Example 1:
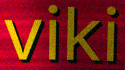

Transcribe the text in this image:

viki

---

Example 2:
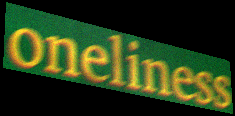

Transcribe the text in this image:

oneliness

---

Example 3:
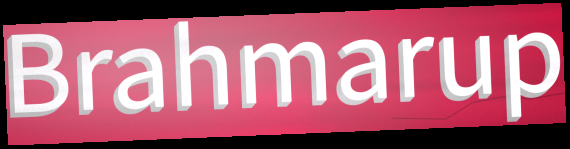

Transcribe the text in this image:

Brahmarup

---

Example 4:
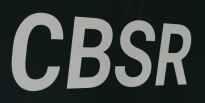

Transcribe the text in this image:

CBSR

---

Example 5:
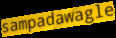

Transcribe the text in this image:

sampadawagle